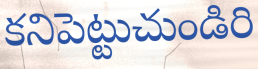
కనిపెట్టుచుండిరి